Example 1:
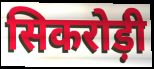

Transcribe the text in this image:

सिकरोड़ी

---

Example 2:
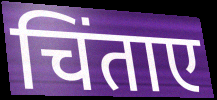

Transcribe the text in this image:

चिंताए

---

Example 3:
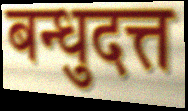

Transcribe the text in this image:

बन्धुदत्त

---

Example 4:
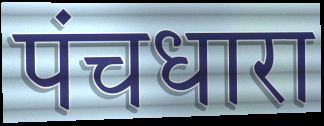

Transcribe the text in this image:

पंचधारा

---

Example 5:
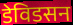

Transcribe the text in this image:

डेविडसन